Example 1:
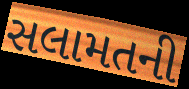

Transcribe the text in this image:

સલામતની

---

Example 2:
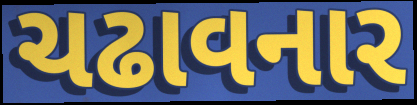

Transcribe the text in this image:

ચઢાવનાર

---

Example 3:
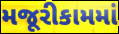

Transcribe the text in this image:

મજૂરીકામમાં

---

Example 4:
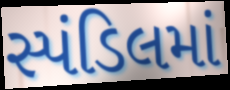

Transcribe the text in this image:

સ્પંડિલમાં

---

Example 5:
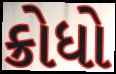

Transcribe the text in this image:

ક્રોધો